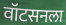
वॉटसनला